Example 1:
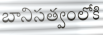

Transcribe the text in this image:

బానిసత్వంలోకి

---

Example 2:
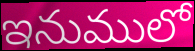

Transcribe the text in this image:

ఇనుములో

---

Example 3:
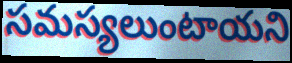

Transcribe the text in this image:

సమస్యలుంటాయని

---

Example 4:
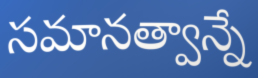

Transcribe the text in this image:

సమానత్వాన్నే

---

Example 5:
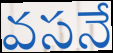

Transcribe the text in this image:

వసనే